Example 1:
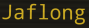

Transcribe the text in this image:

Jaflong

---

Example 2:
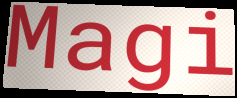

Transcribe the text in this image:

Magi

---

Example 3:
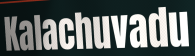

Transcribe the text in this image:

Kalachuvadu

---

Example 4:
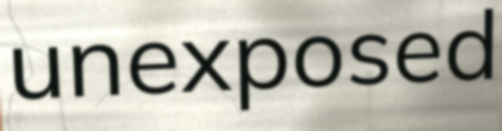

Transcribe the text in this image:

unexposed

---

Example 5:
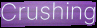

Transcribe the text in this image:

Crushing